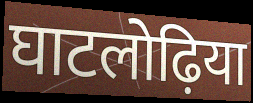
घाटलोढ़िया